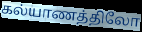
கல்யாணத்திலோ